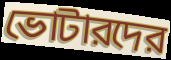
ভোটারদের